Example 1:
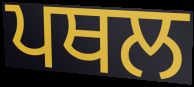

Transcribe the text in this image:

ਪਥਲ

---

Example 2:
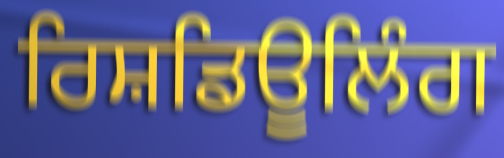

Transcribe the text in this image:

ਰਿਸ਼ਡਿਊਲਿੰਗ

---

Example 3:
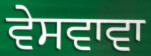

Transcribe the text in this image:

ਵੇਸਵਾਵਾ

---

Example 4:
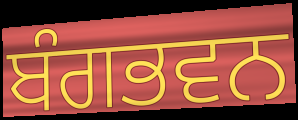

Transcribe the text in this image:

ਬੰਗਭਵਨ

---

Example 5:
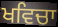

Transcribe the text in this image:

ਖਵਿਚਾ